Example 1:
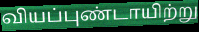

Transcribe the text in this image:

வியப்புண்டாயிற்று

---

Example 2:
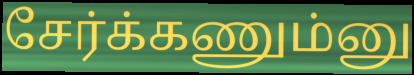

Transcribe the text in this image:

சேர்க்கணும்னு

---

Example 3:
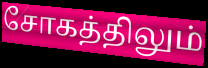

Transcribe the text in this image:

சோகத்திலும்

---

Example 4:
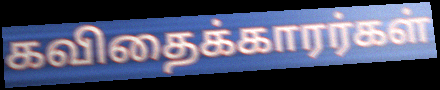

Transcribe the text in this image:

கவிதைக்காரர்கள்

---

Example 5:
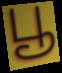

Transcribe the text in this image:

பூ